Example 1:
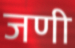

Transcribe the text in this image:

जणी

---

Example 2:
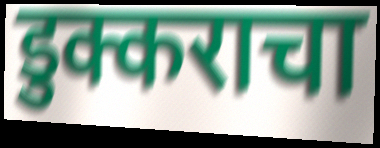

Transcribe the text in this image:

डुक्कराचा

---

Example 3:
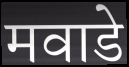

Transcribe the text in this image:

मवाडे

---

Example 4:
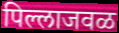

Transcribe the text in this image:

पिल्लाजवळ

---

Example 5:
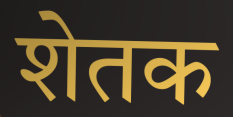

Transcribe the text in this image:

शेतक